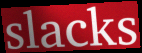
slacks